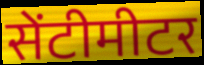
सेंटीमीटर